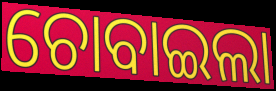
ଚୋବାଇଲା